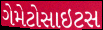
ગેમેટોસાઇટસ